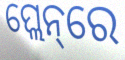
ପ୍ଲେନ୍‌ରେ